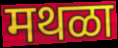
मथळा